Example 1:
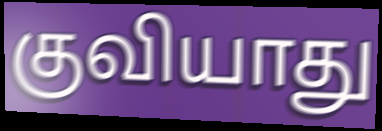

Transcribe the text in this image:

குவியாது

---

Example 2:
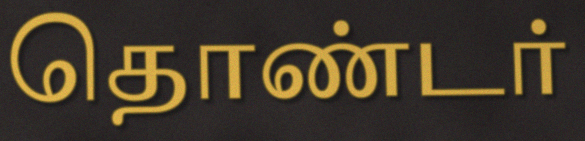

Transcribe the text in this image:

தொண்டர்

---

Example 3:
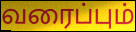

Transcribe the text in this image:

வரைப்பும்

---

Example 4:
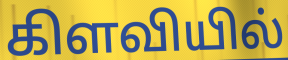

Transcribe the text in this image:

கிளவியில்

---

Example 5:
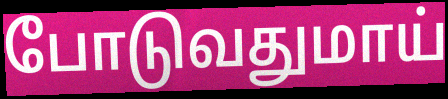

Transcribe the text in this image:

போடுவதுமாய்